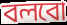
বলবো